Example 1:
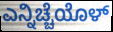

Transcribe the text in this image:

ಎನ್ನಿಚ್ಚೆಯೊಳ್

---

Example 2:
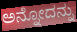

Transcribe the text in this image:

ಅನ್ನೋದನ್ನು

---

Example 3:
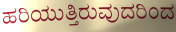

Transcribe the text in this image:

ಹರಿಯುತ್ತಿರುವುದರಿಂದ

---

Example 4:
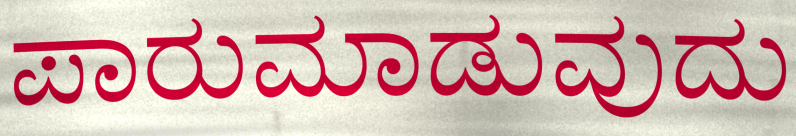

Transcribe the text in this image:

ಪಾರುಮಾಡುವುದು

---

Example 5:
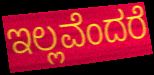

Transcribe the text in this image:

ಇಲ್ಲವೆಂದರೆ